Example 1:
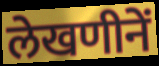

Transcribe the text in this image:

लेखणीनें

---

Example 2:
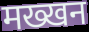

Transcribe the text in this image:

मख्खन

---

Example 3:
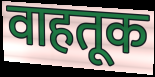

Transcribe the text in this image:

वाहतूक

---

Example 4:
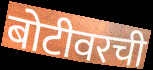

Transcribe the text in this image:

बोटीवरची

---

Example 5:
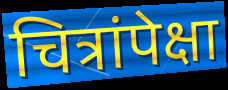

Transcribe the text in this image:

चित्रांपेक्षा